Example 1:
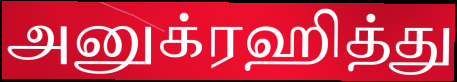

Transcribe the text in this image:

அனுக்ரஹித்து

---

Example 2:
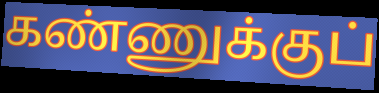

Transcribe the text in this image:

கண்ணுக்குப்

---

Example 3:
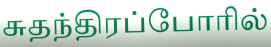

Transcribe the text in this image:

சுதந்திரப்போரில்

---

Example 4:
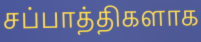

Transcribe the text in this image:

சப்பாத்திகளாக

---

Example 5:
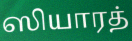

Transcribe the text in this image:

ஸியாரத்